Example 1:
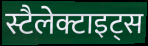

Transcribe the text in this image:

स्टैलेक्टाइट्स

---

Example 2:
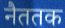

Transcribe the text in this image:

नैततक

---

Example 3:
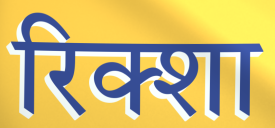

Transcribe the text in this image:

रिक्‍शा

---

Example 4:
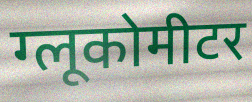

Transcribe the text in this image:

ग्लूकोमीटर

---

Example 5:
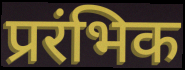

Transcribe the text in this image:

प्ररंभिक